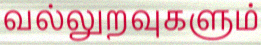
வல்லுறவுகளும்